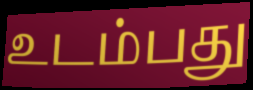
உடம்பது